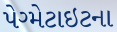
પેગ્મેટાઇટના